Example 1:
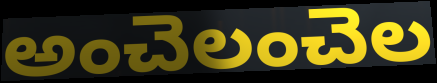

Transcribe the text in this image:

అంచెలంచెల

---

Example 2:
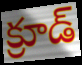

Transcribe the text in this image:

క్రూడ్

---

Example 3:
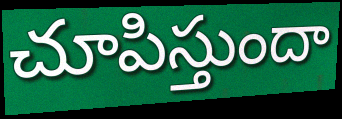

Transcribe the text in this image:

చూపిస్తుందా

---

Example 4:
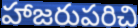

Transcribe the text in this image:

హాజరుపరిచి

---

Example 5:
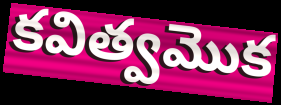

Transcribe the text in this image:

కవిత్వమొక